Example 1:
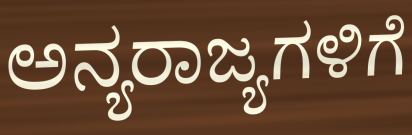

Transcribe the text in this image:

ಅನ್ಯರಾಜ್ಯಗಳಿಗೆ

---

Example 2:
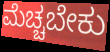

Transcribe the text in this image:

ಮೆಚ್ಚಬೇಕು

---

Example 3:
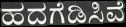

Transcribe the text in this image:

ಹದಗೆಡಿಸಿವೆ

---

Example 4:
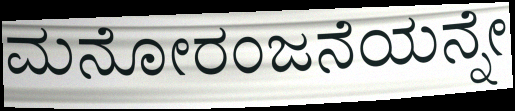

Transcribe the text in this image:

ಮನೋರಂಜನೆಯನ್ನೇ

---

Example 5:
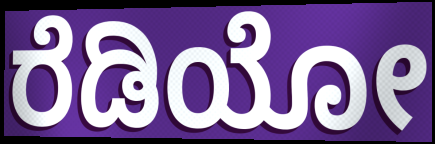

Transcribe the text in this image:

ರೆಡಿಯೋ